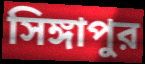
সিঙ্গাপুর